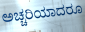
ಅಚ್ಚರಿಯಾದರೂ